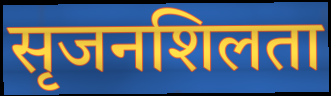
सृजनशिलता